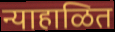
न्याहाळित